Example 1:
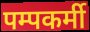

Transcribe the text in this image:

पम्पकर्मी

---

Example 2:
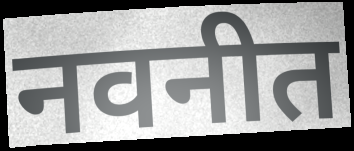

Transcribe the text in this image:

नवनीत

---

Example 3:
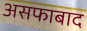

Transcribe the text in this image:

असफाबाद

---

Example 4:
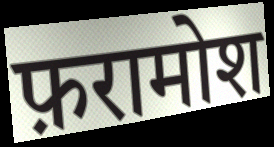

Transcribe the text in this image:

फ़रामोश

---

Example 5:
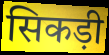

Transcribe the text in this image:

सिकड़ी